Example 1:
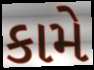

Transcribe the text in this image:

કામે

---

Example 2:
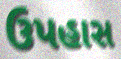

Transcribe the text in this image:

ઉપહાસ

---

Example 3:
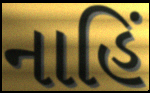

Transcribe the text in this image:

નાહિં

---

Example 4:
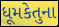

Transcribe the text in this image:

ધૂમકેતુના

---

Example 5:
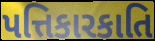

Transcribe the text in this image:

પત્તિકારકાતિ